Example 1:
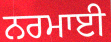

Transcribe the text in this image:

ਨਰਮਾਈ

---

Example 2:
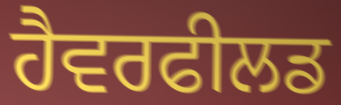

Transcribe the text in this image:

ਹੈਵਰਫੀਲਡ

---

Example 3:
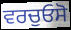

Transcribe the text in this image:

ਵਰਚੁਓਸੋ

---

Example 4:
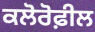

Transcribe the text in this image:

ਕਲੋਰੋਫ਼ੀਲ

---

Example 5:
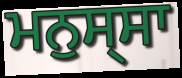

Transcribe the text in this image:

ਮਨੁਸ੍ਸਾ